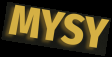
MYSY